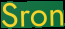
Sron